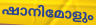
ഷാനിമോളും